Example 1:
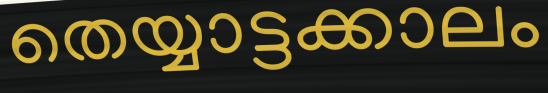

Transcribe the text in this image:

തെയ്യാട്ടക്കാലം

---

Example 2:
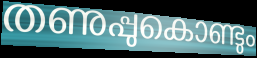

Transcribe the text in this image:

തണുപ്പുകൊണ്ടും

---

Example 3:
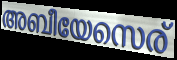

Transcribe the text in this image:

അബീയേസെര്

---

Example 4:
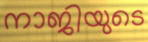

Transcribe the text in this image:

നാജിയുടെ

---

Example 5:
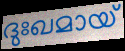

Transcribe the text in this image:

ദുഃഖമായ്